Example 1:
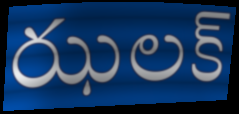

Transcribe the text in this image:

ఝలక్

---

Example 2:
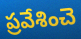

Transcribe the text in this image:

ప్రవేశించె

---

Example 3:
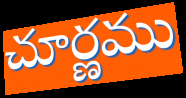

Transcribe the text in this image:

చూర్ణము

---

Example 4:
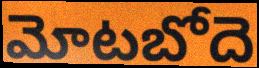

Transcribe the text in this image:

మోటబోదె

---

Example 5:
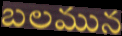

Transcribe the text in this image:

బలమున